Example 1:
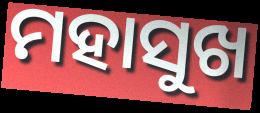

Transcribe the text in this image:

ମହାସୁଖ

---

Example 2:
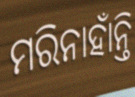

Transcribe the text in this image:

ମରିନାହାଁନ୍ତି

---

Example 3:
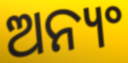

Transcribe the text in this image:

ଅନ୍ୟଂ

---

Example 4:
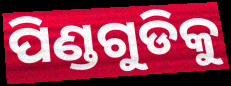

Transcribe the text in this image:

ପିଣ୍ଡଗୁଡିକୁ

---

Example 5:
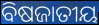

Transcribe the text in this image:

ବିଷଜାତୀୟ